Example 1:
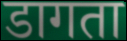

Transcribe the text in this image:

डागता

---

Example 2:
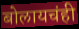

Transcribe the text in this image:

बोलायचंही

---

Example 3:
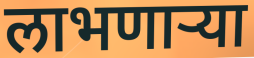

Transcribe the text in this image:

लाभणार्‍या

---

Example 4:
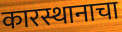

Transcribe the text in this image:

कारस्थानाचा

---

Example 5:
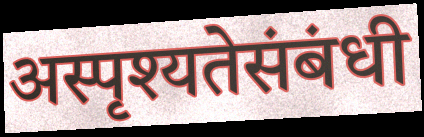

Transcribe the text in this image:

अस्पृश्यतेसंबंधी